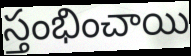
స్తంభించాయి